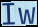
Iw